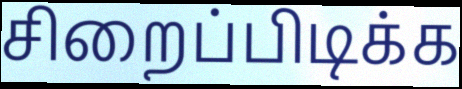
சிறைப்பிடிக்க